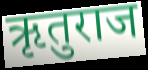
ऋृतुराज